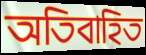
অতিবাহিত